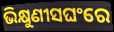
ଭିକ୍ଷୁଣୀସଘଂରେ